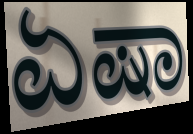
ಏಷಾ